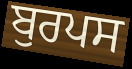
ਬੁਰਪਸ